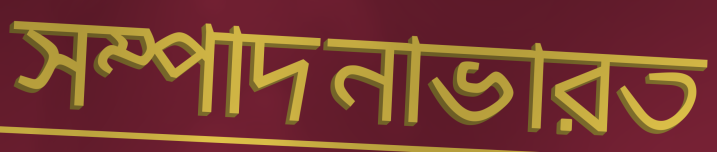
সম্পাদনাভারত